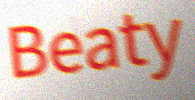
Beaty